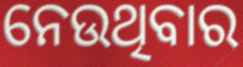
ନେଉଥିବାର